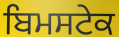
ਬਿਮਸਟੇਕ